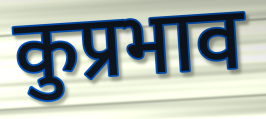
कुप्रभाव